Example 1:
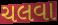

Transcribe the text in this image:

ચલવા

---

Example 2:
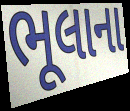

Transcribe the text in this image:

ભૂલાના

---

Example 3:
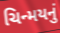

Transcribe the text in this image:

ચિન્મયનું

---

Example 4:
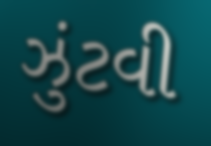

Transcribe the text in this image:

ઝુંટવી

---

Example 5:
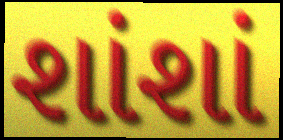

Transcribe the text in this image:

શાંશાં